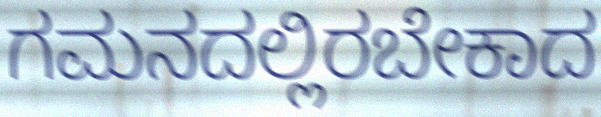
ಗಮನದಲ್ಲಿರಬೇಕಾದ